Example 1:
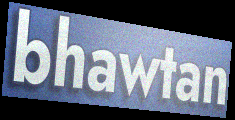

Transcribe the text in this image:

bhawtan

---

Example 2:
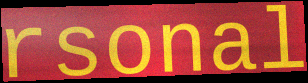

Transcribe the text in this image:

rsonal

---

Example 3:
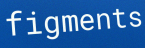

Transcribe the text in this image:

figments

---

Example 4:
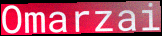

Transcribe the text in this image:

Omarzai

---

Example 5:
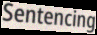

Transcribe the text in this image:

Sentencing